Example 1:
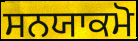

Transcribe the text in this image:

ਸਨਯਾਕਮੋ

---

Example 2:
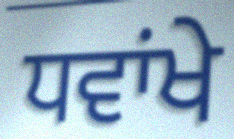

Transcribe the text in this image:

ਧਵਾਂਖੇ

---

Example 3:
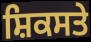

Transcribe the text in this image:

ਸ਼ਿਕਸਤੇ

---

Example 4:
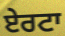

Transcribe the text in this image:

ਏਰਟਾ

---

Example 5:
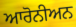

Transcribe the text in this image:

ਆਰੋਨੀਅਨ